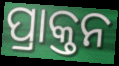
ପ୍ରାକ୍ତନ